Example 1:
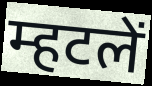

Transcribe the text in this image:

म्हटलें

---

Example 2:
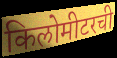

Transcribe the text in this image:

किलोमीटरची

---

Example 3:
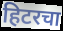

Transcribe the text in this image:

हिटरचा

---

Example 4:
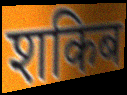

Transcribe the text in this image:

शकिब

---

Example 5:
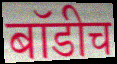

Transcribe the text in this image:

बॉडीच